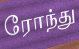
ரோந்து